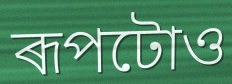
ৰূপটোও